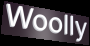
Woolly